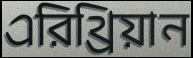
এরিথ্রিয়ান